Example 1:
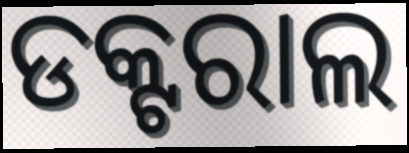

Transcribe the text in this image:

ଡକ୍ଟରାଲ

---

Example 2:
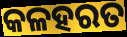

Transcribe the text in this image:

କଳହରତ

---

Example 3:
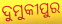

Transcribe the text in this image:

ଦୁମୁକୀପୁର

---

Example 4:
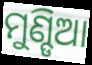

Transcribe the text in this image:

ମୁଣ୍ଡିଆ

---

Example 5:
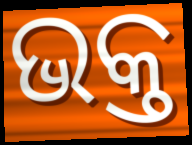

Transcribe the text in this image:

ଭକ୍ତ